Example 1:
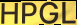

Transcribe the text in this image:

HPGL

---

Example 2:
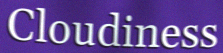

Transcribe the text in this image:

Cloudiness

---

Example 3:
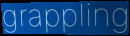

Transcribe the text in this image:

grappling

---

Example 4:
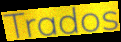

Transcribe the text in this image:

Trados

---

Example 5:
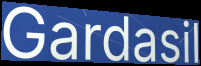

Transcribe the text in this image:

Gardasil